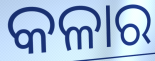
କଳାର